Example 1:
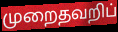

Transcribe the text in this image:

முறைதவறிப்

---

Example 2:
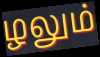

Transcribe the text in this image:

ழலும்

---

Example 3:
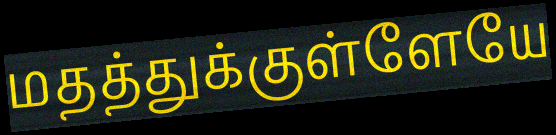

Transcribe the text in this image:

மதத்துக்குள்ளேயே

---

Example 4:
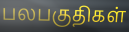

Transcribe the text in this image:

பலபகுதிகள்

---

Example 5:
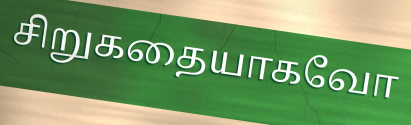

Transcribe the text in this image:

சிறுகதையாகவோ